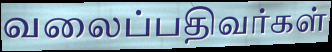
வலைப்பதிவர்கள்